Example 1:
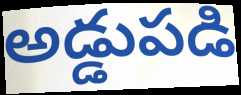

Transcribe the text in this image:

అడ్డుపడి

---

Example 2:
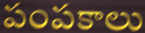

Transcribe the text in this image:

పంపకాలు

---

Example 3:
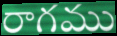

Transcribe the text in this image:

రాగము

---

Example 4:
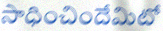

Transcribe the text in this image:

సాధించిందేమిటో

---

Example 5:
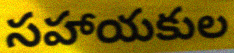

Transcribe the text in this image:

సహాయకుల